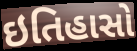
ઇતિહાસો